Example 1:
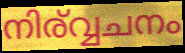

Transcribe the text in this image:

നിര്വ്വചനം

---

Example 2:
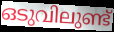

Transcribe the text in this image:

ഒടുവിലുണ്ട്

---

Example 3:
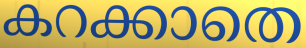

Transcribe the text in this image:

കറക്കാതെ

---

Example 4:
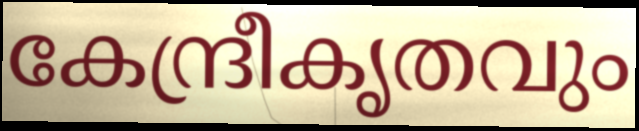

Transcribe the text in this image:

കേന്ദ്രീകൃതവും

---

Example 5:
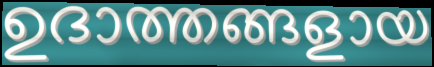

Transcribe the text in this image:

ഉദാത്തങ്ങളായ